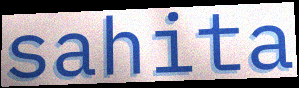
sahita